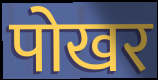
पोखर